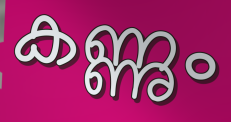
കണ്ണും